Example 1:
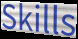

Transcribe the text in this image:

Skills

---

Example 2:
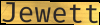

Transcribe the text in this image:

Jewett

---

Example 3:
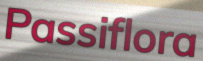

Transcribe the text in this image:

Passiflora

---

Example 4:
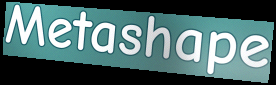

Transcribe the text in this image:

Metashape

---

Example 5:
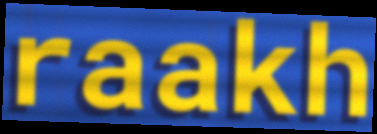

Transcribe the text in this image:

raakh